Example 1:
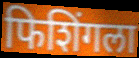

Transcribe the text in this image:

फिशिंगला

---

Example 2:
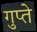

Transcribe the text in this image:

गुप्ते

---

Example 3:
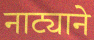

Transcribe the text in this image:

नाट्याने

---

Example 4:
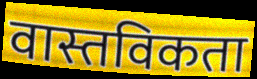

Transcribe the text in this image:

वास्तविकता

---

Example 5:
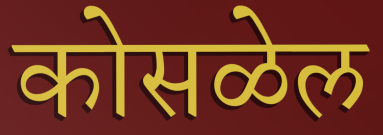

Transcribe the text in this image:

कोसळेल